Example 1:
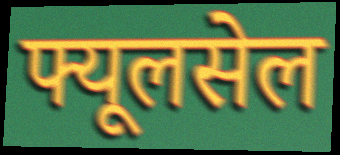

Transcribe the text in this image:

फ्यूलसेल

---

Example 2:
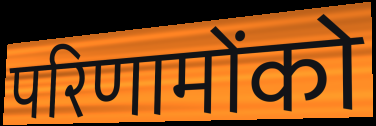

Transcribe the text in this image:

परिणामोंको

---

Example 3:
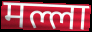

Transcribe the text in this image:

मल्‍ला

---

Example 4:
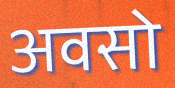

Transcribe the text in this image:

अवसो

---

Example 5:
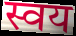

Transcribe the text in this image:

स्वय